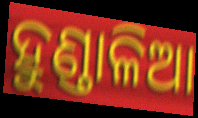
ହୁଣ୍ଡାଳିଆ